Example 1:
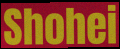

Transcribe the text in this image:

Shohei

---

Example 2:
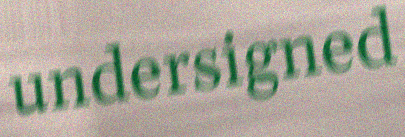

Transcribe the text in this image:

undersigned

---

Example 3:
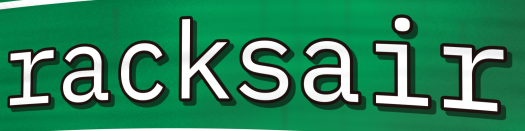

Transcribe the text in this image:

racksair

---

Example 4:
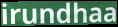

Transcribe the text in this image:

irundhaa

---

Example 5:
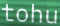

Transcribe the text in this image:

tohu